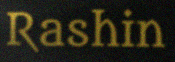
Rashin